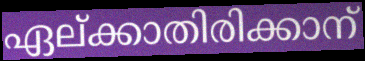
ഏല്ക്കാതിരിക്കാന്